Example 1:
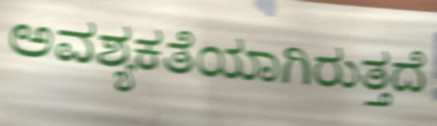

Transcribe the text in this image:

ಅವಶ್ಯಕತೆಯಾಗಿರುತ್ತದೆ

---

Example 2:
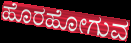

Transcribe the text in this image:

ಹೊರಹೋಗುವ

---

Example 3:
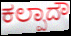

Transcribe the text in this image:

ಕಲ್ಪಾದೌ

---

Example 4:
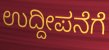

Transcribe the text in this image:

ಉದ್ದೀಪನೆಗೆ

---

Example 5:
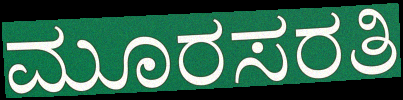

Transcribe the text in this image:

ಮೂರಸರತಿ